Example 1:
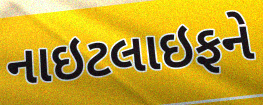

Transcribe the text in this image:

નાઇટલાઇફને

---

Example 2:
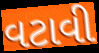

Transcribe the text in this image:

વટાવી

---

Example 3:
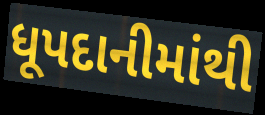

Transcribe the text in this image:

ધૂપદાનીમાંથી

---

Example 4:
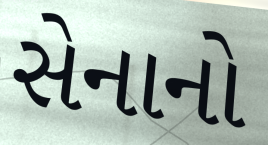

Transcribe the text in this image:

સેનાનો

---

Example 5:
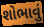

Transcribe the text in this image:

શોભાવું